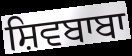
ਸ਼ਿਵਬਾਬਾ